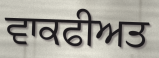
ਵਾਕਫੀਅਤ